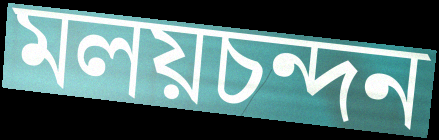
মলয়চন্দন